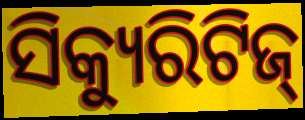
ସିକ୍ୟୁରିଟିଜ୍